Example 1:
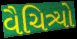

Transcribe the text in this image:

વૈચિત્ર્યો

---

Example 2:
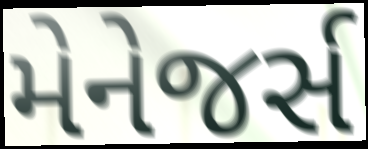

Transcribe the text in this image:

મેનેજર્સ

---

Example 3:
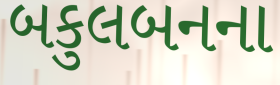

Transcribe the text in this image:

બકુલબનના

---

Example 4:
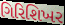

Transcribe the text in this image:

ગિરિશિખર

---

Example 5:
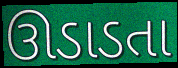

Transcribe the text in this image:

ઊડાડતા